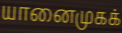
யானைமுகக்